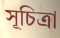
সূচিত্রা